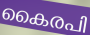
കൈരപി